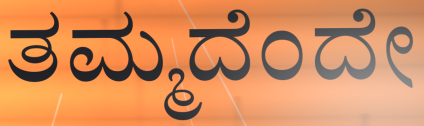
ತಮ್ಮದೆಂದೇ